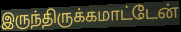
இருந்திருக்கமாட்டேன்